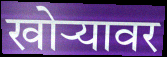
खोऱ्यावर